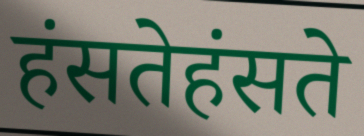
हंसतेहंसते